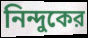
নিন্দুকের